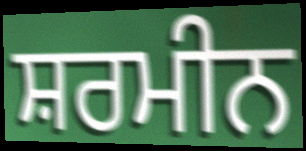
ਸ਼ਰਮੀਨ